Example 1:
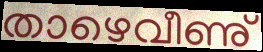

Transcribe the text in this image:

താഴെവീണു്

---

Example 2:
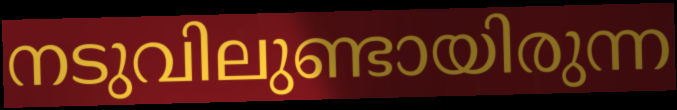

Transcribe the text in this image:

നടുവിലുണ്ടായിരുന്ന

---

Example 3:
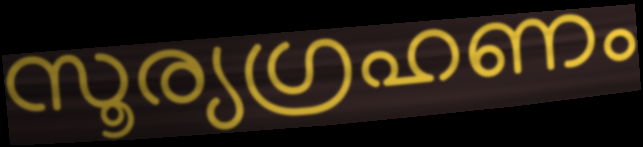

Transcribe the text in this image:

സൂര്യഗ്രഹണം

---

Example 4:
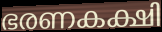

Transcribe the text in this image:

ഭരണകക്ഷി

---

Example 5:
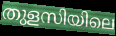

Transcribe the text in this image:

തുളസിയിലെ